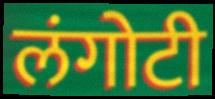
लंगोटी